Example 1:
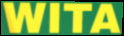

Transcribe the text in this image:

WITA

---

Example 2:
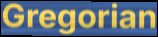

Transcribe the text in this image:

Gregorian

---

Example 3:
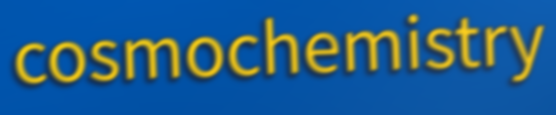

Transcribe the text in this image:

cosmochemistry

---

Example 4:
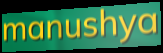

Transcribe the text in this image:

manushya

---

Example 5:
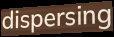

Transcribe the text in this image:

dispersing